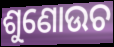
ଶୁଣୋଉଚ